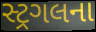
સ્ટ્રગલના